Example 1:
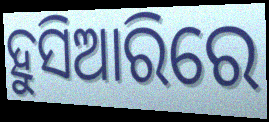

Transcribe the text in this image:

ହୁସିଆରିରେ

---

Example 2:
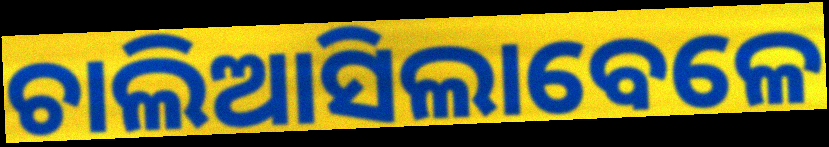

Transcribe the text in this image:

ଚାଲିଆସିଲାବେଳେ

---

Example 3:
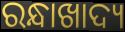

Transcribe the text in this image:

ରନ୍ଧାଖାଦ୍ୟ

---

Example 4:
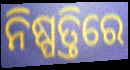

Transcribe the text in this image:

ନିଷ୍ପତ୍ତିରେ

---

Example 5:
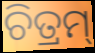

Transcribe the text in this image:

ଚିତ୍ରମ୍